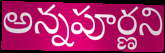
అన్నపూర్ణని